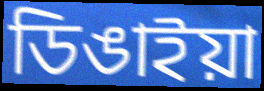
ডিঙাইয়া